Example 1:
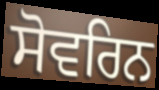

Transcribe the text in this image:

ਸੋਵਰਿਨ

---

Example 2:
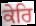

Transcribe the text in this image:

ਕੇਰਿ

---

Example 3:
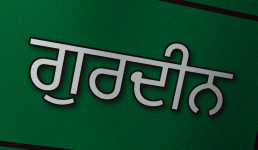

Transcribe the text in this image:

ਗੁਰਦੀਨ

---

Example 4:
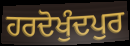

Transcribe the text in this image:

ਹਰਦੋਖੁੰਦਪੁਰ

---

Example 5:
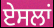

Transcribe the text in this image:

ਏਸਲਾਂ